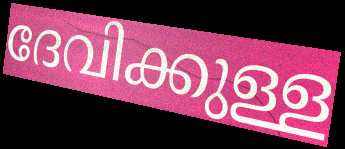
ദേവിക്കുള്ള